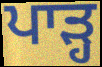
ਪਾੜ੍ਹ